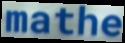
mathe